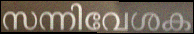
സന്നിവേശക